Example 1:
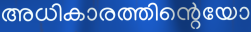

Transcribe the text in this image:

അധികാരത്തിന്റെയോ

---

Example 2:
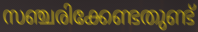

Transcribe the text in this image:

സഞ്ചരിക്കേണ്ടതുണ്ട്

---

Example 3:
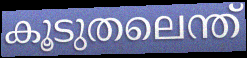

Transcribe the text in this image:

കൂടുതലെന്ത്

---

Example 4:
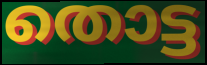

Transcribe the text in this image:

തൊട്ട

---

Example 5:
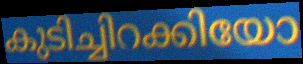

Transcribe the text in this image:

കുടിച്ചിറക്കിയോ